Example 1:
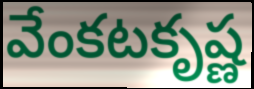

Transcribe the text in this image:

వేంకటకృష్ణ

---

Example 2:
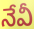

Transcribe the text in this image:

నేవీ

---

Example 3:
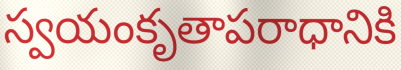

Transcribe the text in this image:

స్వయంకృతాపరాధానికి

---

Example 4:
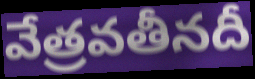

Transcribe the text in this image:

వేత్రవతీనదీ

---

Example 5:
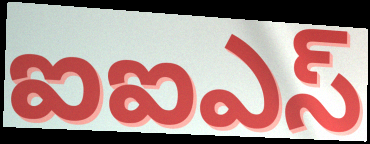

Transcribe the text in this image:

ఐఐఎస్